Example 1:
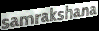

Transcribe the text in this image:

samrakshana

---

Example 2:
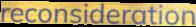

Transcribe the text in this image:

reconsideration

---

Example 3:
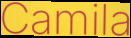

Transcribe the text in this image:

Camila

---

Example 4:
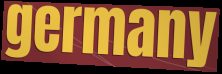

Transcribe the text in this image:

germany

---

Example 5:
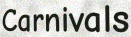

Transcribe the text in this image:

Carnivals